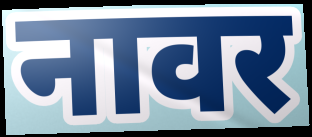
नावर